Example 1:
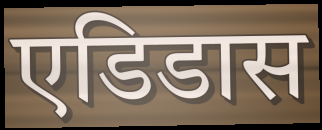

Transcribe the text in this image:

एडिडास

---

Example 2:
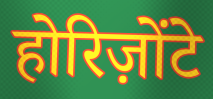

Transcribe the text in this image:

होरिज़ोंटे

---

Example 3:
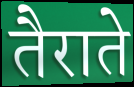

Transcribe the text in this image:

तैराते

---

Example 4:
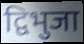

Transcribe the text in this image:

द्विभुजा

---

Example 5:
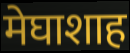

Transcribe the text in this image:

मेघाशाह